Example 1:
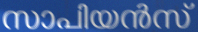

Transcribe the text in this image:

സാപിയൻസ്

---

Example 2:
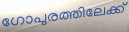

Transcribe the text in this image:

ഗോപുരത്തിലേക്ക്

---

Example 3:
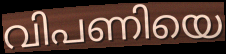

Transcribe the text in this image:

വിപണിയെ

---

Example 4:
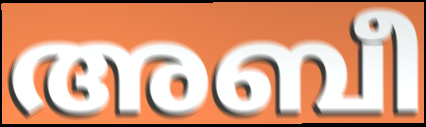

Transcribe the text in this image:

അബീ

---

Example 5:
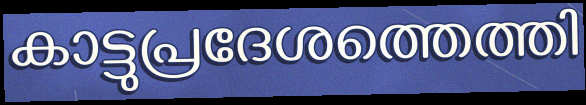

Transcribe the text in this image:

കാട്ടുപ്രദേശത്തെത്തി